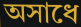
অসাধে